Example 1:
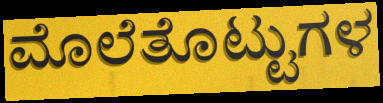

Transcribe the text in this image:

ಮೊಲೆತೊಟ್ಟುಗಳ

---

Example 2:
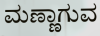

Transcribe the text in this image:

ಮಣ್ಣಾಗುವ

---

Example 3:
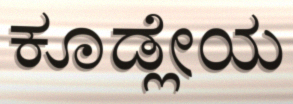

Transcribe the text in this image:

ಕೂಡ್ಲೇಯ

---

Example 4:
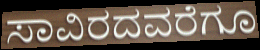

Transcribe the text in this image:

ಸಾವಿರದವರೆಗೂ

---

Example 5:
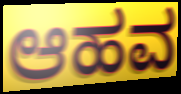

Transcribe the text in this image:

ಆಹವ